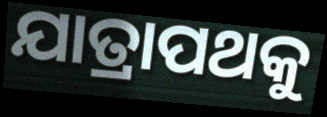
ଯାତ୍ରାପଥକୁ